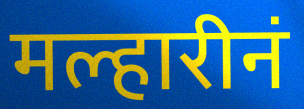
मल्हारीनं